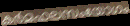
കർമഫലസംയോഗം